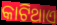
କାଟିଥାଏ